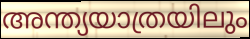
അന്ത്യയാത്രയിലും